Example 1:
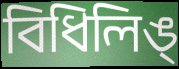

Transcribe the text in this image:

বিধিলিঙ্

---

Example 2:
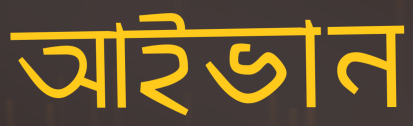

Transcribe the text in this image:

আইভান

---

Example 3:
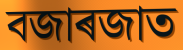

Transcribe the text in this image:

বজাৰজাত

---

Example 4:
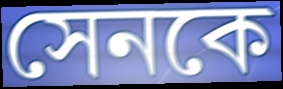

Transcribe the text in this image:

সেনকে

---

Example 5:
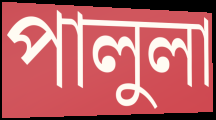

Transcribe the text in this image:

পালুলা